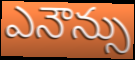
ఎనౌన్సు